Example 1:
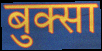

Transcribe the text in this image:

बुक्सा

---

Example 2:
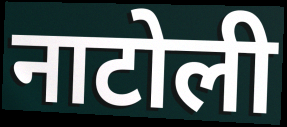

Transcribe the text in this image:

नाटोली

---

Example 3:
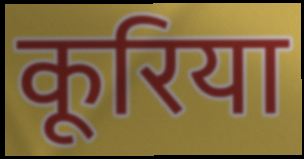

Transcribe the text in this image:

कूरिया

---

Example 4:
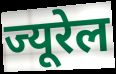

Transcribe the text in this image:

ज्यूरेल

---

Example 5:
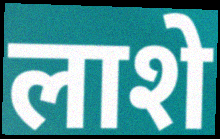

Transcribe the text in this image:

लाशे